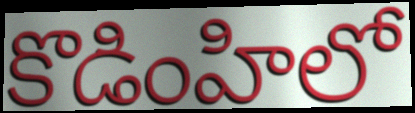
కొడింహిలో